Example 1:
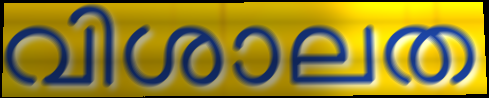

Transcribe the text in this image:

വിശാലത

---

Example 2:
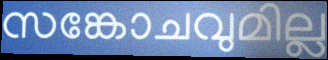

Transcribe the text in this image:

സങ്കോചവുമില്ല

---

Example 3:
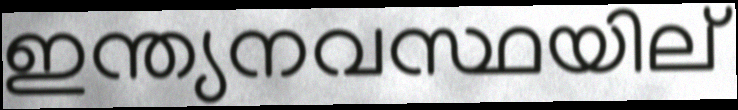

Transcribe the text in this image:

ഇന്ത്യനവസ്ഥയില്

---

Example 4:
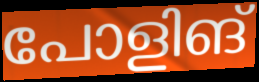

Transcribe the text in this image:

പോളിങ്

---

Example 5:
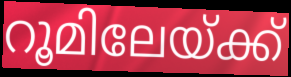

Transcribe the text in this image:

റൂമിലേയ്ക്ക്